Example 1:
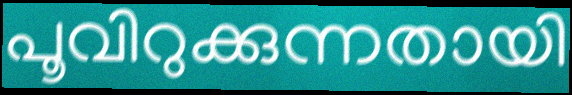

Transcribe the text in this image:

പൂവിറുക്കുന്നതായി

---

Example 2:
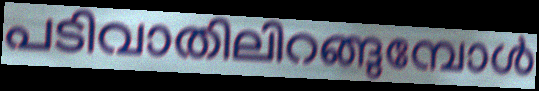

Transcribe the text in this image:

പടിവാതിലിറങ്ങുമ്പോൾ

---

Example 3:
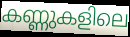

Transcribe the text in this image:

കണ്ണുകളിലെ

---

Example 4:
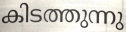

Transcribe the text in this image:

കിടത്തുന്നു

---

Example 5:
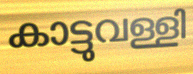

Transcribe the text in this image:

കാട്ടുവള്ളി